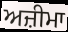
ਅਜ਼ੀਮਾ